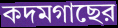
কদমগাছের